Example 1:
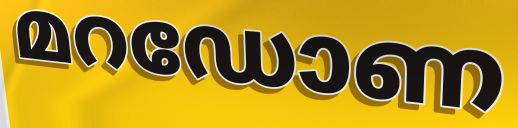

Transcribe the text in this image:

മറഡോണ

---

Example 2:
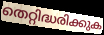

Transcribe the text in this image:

തെറ്റിദ്ധരിക്കുക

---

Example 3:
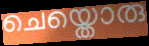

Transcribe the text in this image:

ചെയ്തൊരു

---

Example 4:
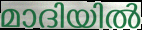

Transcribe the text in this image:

മാദിയിൽ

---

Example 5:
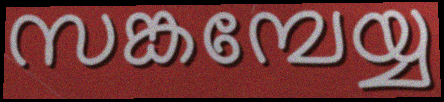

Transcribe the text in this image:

സങ്കമ്പേയ്യ